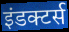
इंडक्टर्स